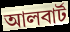
আলবার্ট